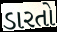
ડારતો